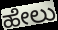
ಹೇಲು